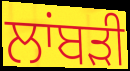
ਲਾਂਬੜੀ